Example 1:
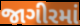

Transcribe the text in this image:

જાગીરમાં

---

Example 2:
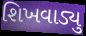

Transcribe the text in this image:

શિખવાડ્યુ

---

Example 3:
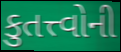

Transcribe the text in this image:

કુતત્ત્વોની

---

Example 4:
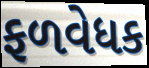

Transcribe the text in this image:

ફળવેધક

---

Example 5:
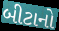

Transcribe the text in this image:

બીટાનો